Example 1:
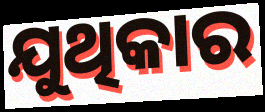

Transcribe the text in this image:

ଯୁଥିକାର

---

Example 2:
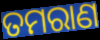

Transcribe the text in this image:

ତମରାଣ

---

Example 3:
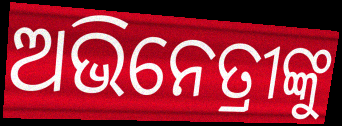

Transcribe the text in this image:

ଅଭିନେତ୍ରୀଙ୍କୁ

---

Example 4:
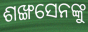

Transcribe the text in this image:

ଶଙ୍ଖସେନଙ୍କୁ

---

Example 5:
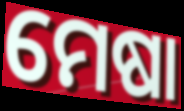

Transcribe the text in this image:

ମେଷା